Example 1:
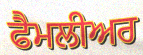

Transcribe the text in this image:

ਫੈਮਲੀਅਰ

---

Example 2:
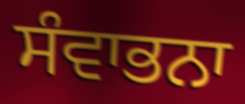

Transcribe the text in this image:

ਸੰਵਾਭਨਾ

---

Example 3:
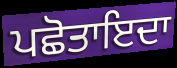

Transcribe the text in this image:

ਪਛੋਤਾਇਦਾ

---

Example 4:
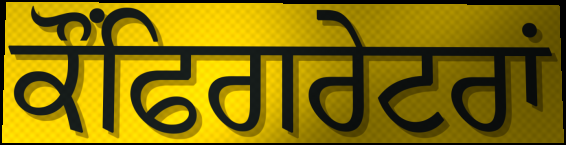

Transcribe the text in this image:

ਕੌਂਫਿਗਰੇਟਰਾਂ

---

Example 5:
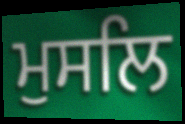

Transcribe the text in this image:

ਮੁਸਲਿ